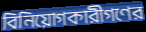
বিনিয়োগকারীগণের